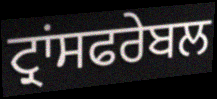
ਟ੍ਰਾਂਸਫਰੇਬਲ